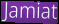
Jamiat